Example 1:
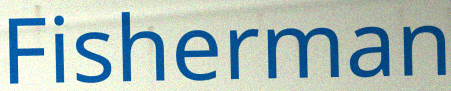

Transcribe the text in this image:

Fisherman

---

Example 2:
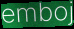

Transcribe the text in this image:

emboj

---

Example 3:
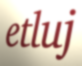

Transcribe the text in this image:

etluj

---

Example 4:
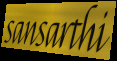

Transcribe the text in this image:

sansarthi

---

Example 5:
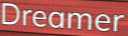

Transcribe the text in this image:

Dreamer